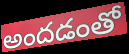
అందడంతో